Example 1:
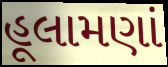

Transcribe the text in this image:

હૂલામણાં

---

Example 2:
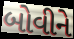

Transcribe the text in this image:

બોવીને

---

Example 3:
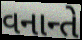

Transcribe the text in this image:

વનાન્તે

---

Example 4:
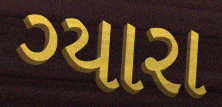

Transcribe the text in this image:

ગ્યારા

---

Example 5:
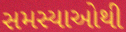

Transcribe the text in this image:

સમસ્યાઓથી